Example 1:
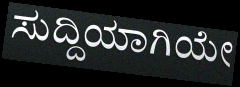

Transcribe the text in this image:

ಸುದ್ದಿಯಾಗಿಯೇ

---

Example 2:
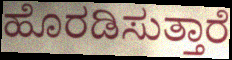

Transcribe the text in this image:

ಹೊರಡಿಸುತ್ತಾರೆ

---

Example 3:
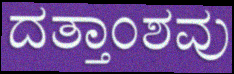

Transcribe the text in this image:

ದತ್ತಾಂಶವು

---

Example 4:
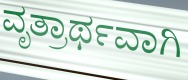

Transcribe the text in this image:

ವೃತ್ರಾರ್ಥವಾಗಿ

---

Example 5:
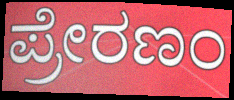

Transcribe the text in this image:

ಪ್ರೇರಣಂ